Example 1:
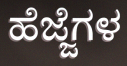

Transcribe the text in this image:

ಹೆಜ್ಜೆಗಳ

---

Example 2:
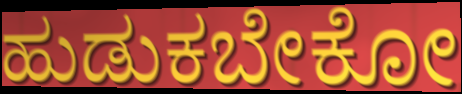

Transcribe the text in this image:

ಹುಡುಕಬೇಕೋ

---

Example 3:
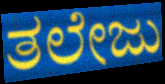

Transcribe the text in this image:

ತಲೇಜು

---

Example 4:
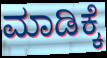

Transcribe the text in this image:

ಮಾಡಿಕ್ಕೆ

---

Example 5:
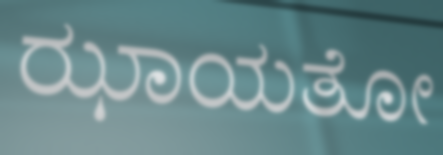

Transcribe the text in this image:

ಝಾಯತೋ